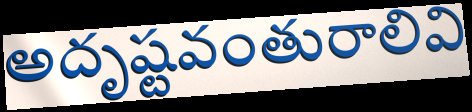
అదృష్టవంతురాలివి